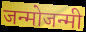
जन्मोजन्मी